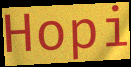
Hopi